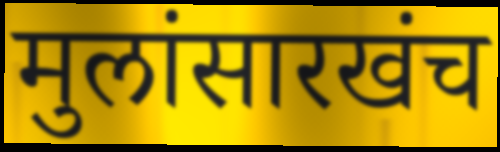
मुलांसारखंच